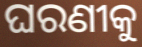
ଘରଣୀକୁ